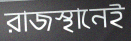
রাজস্থানেই